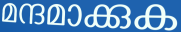
മന്ദമാക്കുക